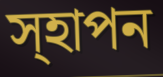
স্হাপন